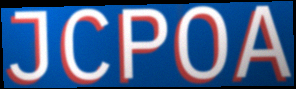
JCPOA